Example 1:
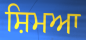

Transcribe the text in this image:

ਸ਼ਿਮਆ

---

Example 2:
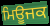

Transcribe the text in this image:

ਮਿਊਜਕ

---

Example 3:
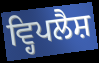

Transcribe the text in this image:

ਵ੍ਹਿਪਲੈਸ਼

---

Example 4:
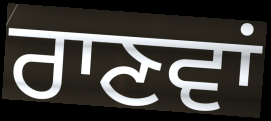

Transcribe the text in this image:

ਰਾਣਵਾਂ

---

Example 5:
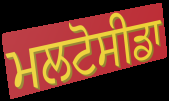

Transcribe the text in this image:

ਮਲਟੋਸੀਡਾ